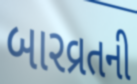
બારવ્રતની